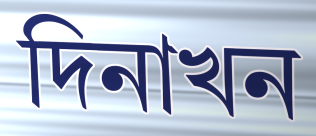
দিনাখন